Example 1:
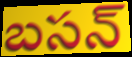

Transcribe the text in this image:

బసన్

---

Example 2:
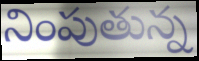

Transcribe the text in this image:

నింపుతున్న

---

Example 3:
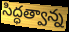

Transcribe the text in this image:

సిద్ధత్వాన్న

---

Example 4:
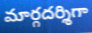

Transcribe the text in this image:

మార్గదర్శిగా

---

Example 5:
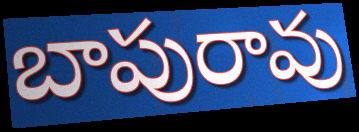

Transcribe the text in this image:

బాపురావు